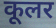
कूलर